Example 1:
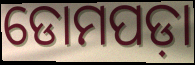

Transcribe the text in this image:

ଡୋମପଡ଼ା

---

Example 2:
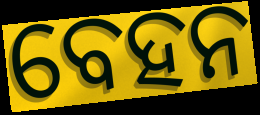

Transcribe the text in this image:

ବେହନ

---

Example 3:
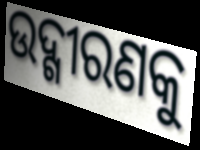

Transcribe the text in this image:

ଉଦ୍ଗୀରଣକୁ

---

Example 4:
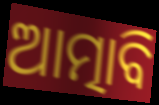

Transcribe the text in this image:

ଆତ୍ମାବି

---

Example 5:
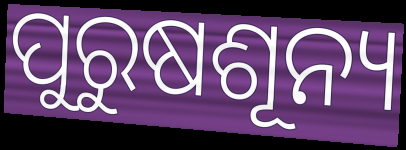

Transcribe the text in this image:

ପୁରୁଷଶୂନ୍ୟ